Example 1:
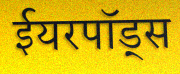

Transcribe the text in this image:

ईयरपॉड्स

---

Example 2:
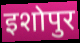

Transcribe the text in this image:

इशोपुर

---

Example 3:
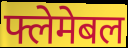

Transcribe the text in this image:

फ्लेमेबल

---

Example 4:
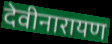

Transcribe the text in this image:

देवीनारायण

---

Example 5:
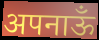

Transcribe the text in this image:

अपनाऊँ